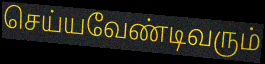
செய்யவேண்டிவரும்